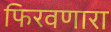
फिरवणारा